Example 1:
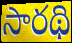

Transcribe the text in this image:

సారథి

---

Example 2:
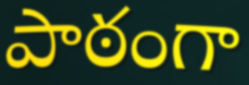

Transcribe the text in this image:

పాఠంగా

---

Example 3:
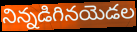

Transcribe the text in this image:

నిన్నడిగినయెడల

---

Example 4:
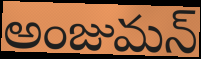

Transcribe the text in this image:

అంజుమన్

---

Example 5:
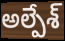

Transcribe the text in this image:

అల్పేశ్